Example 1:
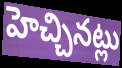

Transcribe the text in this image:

హెచ్చినట్లు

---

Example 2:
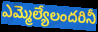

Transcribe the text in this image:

ఎమ్మెల్యేలందరినీ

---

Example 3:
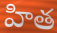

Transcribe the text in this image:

హిత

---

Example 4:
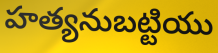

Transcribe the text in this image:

హత్యనుబట్టియు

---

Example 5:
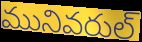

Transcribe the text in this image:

మునివరుల్